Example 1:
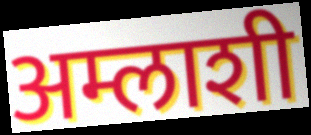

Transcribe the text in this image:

अम्लाशी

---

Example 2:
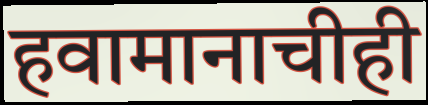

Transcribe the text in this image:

हवामानाचीही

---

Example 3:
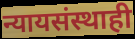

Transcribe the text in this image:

न्यायसंस्थाही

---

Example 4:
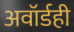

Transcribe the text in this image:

अवॉर्डही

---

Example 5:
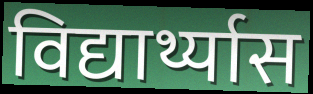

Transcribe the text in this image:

विद्यार्थ्यास